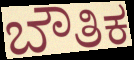
ಬೌತಿಕ